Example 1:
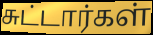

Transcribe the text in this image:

சுட்டார்கள்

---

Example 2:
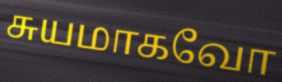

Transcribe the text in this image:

சுயமாகவோ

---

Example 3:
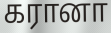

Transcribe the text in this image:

கரானா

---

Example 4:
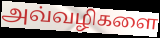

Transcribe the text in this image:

அவ்வழிகளை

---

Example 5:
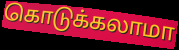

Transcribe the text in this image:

கொடுக்கலாமா